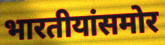
भारतीयांसमोर